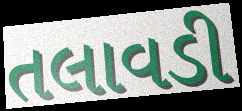
તલાવડી